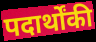
पदार्थोंकी